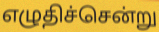
எழுதிச்சென்று